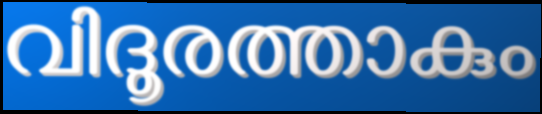
വിദൂരത്താകും